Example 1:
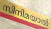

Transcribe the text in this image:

സിനിമയാൽ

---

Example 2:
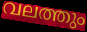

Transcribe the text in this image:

വലത്തും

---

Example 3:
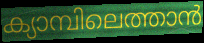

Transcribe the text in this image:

ക്യാമ്പിലെത്താൻ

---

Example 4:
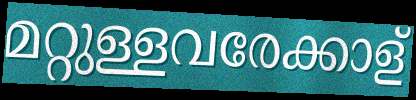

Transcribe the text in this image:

മറ്റുള്ളവരേക്കാള്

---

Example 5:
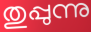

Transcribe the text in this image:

തുപ്പുന്നു